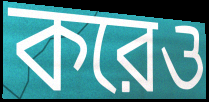
করেও